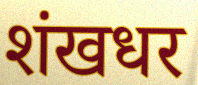
शंखधर